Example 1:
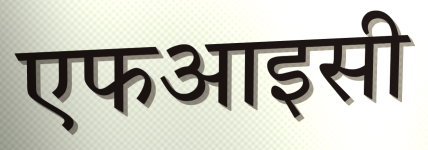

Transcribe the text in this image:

एफआइसी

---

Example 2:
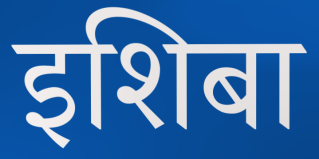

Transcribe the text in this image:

इशिबा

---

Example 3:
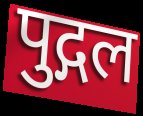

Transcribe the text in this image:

पुद्गल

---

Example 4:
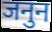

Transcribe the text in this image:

जनुन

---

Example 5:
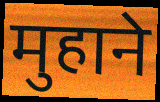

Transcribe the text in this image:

मुहाने